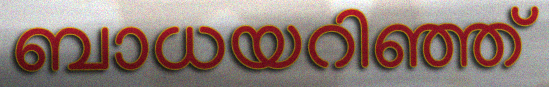
ബാധയറിഞ്ഞ്